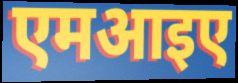
एमआइए